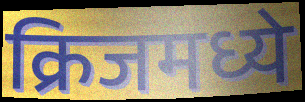
क्रिजमध्ये